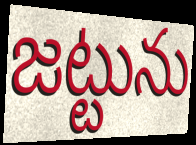
జట్టును